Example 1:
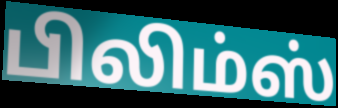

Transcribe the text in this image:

பிலிம்ஸ்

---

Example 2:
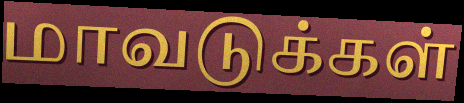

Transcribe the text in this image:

மாவடுக்கள்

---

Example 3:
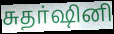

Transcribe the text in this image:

சுதர்ஷினி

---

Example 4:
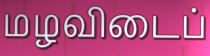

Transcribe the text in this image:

மழவிடைப்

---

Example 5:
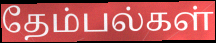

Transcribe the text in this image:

தேம்பல்கள்